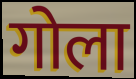
गोला